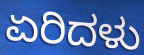
ಏರಿದಳು